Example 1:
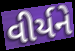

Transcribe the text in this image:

વીર્યને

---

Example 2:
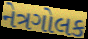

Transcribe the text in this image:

નેત્રગોલક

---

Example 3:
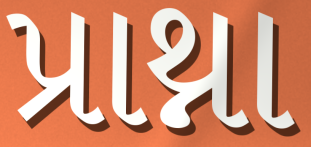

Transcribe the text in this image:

પ્રાથ્ના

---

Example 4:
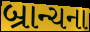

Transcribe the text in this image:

બ્રાન્ચના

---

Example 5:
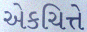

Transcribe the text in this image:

એકચિત્તે